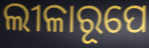
ଲୀଳାରୂପେ